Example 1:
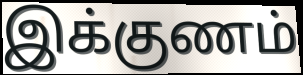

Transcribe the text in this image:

இக்குணம்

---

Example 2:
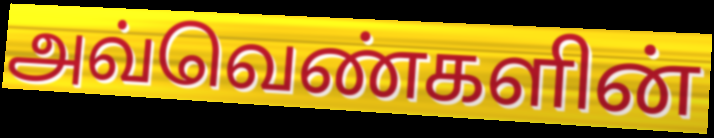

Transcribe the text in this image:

அவ்வெண்களின்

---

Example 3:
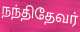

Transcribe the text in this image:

நந்திதேவர்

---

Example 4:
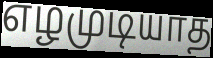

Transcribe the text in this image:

எழமுடியாத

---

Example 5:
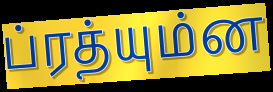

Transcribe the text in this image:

ப்ரத்யும்ன